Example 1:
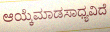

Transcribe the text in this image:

ಆಯ್ಕೆಮಾಡಸಾಧ್ಯವಿದೆ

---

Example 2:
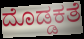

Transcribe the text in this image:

ದೊಡ್ಡಕತೆ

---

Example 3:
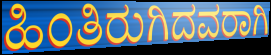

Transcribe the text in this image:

ಹಿಂತಿರುಗಿದವರಾಗಿ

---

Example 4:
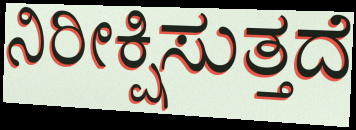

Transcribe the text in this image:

ನಿರೀಕ್ಷಿಸುತ್ತದೆ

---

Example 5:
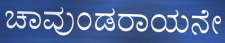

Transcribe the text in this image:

ಚಾವುಂಡರಾಯನೇ